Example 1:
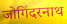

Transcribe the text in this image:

जोगिंदरनाथ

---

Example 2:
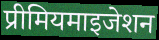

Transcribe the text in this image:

प्रीमियमाइजेशन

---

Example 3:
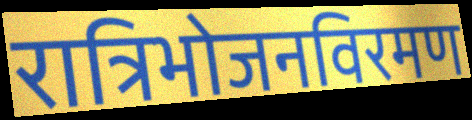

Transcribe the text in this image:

रात्रिभोजनविरमण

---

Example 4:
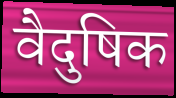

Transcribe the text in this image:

वैदुषिक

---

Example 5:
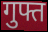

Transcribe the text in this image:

गुफ्त